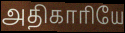
அதிகாரியே